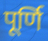
पूर्णि